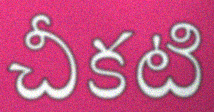
చీకటి